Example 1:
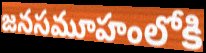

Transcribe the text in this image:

జనసమూహంలోకి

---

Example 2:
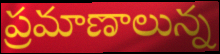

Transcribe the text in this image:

ప్రమాణాలున్న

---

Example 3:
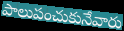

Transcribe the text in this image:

పాలుపంచుకునేవారు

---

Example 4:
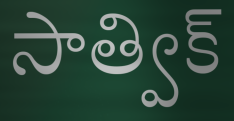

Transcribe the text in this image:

సాత్విక్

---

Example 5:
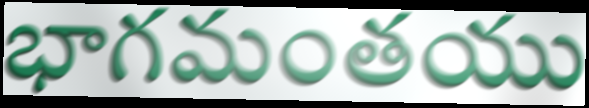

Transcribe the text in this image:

భాగమంతయు